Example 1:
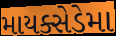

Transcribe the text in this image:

માયક્સેડેમા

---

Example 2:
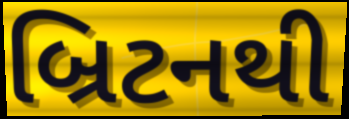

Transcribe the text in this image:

બ્રિટનથી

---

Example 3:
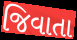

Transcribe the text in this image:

જિવાતા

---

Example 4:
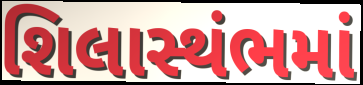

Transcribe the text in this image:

શિલાસ્થંભમાં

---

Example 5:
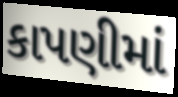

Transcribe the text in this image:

કાપણીમાં